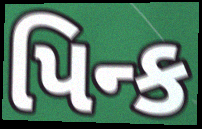
પિન્ક